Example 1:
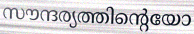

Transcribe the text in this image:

സൗന്ദര്യത്തിന്റെയോ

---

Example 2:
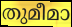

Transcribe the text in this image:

തുമീമാ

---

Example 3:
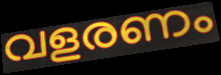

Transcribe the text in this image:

വളരണം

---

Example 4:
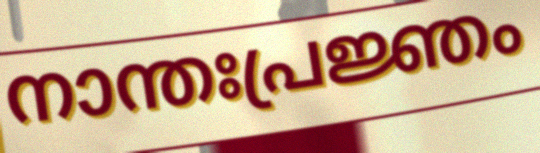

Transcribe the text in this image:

നാന്തഃപ്രജ്ഞം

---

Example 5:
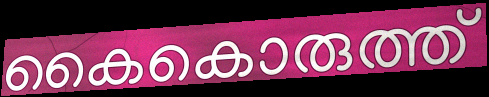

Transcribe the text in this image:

കൈകൊരുത്ത്